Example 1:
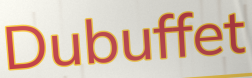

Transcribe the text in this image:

Dubuffet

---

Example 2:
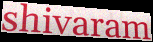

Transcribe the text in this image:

shivaram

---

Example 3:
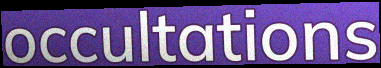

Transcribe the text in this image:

occultations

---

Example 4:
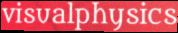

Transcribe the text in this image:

visualphysics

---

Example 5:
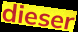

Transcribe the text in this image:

dieser